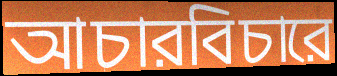
আচারবিচারে